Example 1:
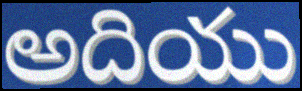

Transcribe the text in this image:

అదియు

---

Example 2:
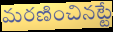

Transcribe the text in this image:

మరణించినట్టే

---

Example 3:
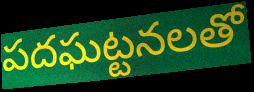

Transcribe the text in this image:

పదఘట్టనలతో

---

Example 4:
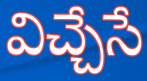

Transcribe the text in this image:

విచ్చేసే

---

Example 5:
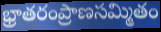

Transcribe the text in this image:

భ్రాతరంప్రాణసమ్మితం